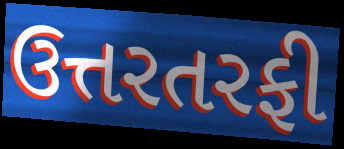
ઉત્તરતરફી